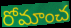
రోమాంచ